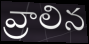
వ్రాలిన